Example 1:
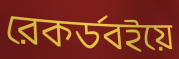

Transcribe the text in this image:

রেকর্ডবইয়ে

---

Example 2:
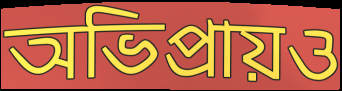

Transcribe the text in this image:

অভিপ্রায়ও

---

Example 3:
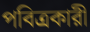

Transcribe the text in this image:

পবিত্রকারী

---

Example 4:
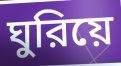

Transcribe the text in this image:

ঘুরিয়ে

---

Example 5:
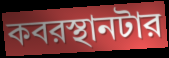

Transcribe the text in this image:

কবরস্থানটার